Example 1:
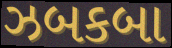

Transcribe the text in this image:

ઝબકબા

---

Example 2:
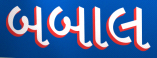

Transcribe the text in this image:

બબાલ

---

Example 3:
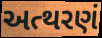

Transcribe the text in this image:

અત્થરણં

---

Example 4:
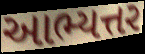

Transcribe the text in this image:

આભ્યત્તર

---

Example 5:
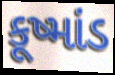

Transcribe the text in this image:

કૂષ્માંડ